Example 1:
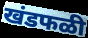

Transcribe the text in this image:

खंडफळी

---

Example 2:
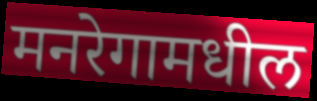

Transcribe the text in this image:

मनरेगामधील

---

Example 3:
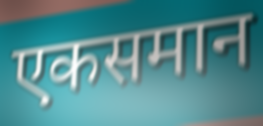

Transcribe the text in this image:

एकसमान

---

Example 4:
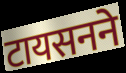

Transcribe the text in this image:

टायसनने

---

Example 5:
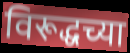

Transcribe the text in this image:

विरूद्धच्या